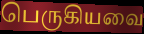
பெருகியவை